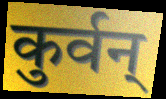
कुर्वन्